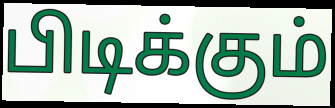
பிடிக்கும்